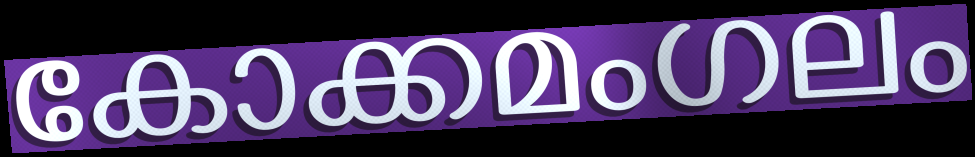
കോക്കമംഗലം